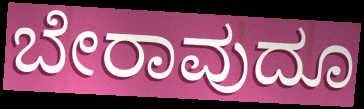
ಬೇರಾವುದೂ